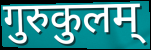
गुरुकुलम्